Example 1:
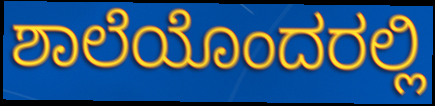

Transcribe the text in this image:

ಶಾಲೆಯೊಂದರಲ್ಲಿ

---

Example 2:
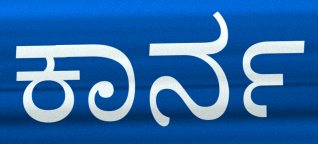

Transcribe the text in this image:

ಕಾರ್ನ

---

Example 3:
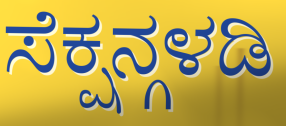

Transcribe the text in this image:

ಸೆಕ್ಷನ್ಗಳಡಿ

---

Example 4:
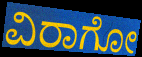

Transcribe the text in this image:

ವಿರಾಗೋ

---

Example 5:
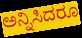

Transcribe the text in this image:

ಅನ್ನಿಸಿದರೂ